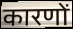
कारणों